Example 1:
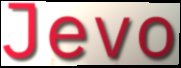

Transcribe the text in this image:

Jevo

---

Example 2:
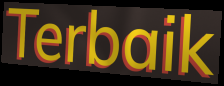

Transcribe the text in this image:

Terbaik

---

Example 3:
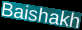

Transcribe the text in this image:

Baishakh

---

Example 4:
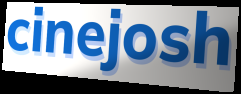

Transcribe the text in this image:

cinejosh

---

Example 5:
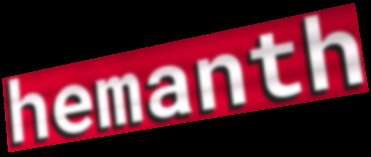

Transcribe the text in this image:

hemanth